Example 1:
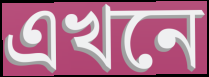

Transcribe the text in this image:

এখনে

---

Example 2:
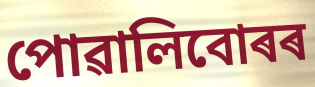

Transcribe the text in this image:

পোৱালিবোৰৰ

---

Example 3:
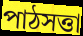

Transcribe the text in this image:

পাঠসত্তা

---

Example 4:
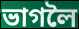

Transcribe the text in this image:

ভাগলৈ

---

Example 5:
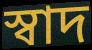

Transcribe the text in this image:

স্বাদ